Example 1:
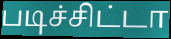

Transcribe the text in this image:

படிச்சிட்டா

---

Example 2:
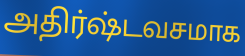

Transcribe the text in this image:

அதிர்ஷ்டவசமாக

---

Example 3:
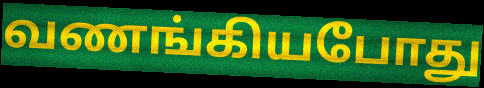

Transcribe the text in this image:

வணங்கியபோது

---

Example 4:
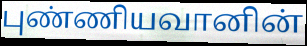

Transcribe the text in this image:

புண்ணியவானின்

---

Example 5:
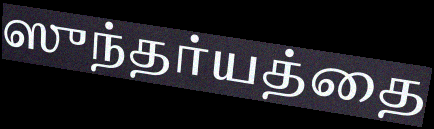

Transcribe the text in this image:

ஸுந்தர்யத்தை